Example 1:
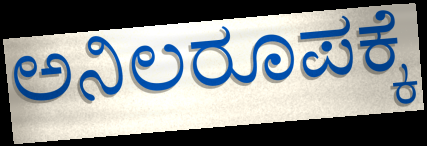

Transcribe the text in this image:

ಅನಿಲರೂಪಕ್ಕೆ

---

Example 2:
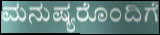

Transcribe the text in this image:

ಮನುಷ್ಯರೊಂದಿಗೆ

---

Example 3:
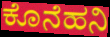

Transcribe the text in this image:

ಕೊನೆಹನಿ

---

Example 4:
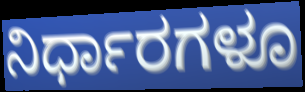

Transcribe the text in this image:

ನಿರ್ಧಾರಗಳೂ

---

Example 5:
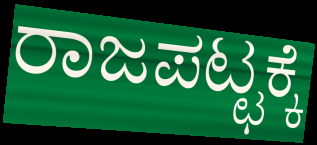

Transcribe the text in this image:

ರಾಜಪಟ್ಟಕ್ಕೆ